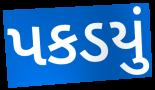
પકડયું